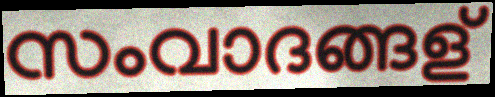
സംവാദങ്ങള്